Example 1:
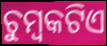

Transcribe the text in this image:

ଚୁମ୍ବକଟିଏ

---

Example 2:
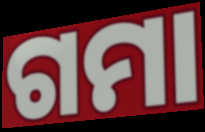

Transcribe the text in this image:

ଗମା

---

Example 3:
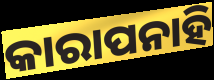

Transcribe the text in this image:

କାରାପନାହି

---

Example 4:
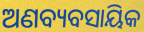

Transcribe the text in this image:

ଅଣବ୍ୟବସାୟିକ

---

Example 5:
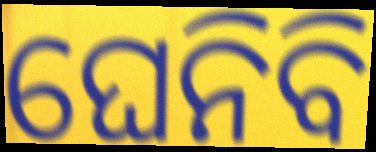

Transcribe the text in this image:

ଘେନିବି